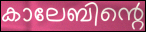
കാലേബിന്റെ